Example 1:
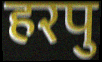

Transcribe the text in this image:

हरपु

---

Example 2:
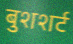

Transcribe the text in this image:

बुशशर्ट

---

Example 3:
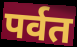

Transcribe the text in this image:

पर्वत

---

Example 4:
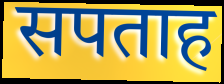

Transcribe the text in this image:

सपताह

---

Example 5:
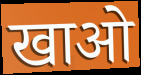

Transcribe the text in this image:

खाओ